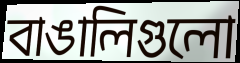
বাঙালিগুলো